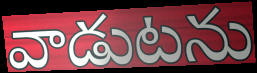
వాడుటను